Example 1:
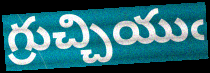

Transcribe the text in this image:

గ్రుచ్చియుఁ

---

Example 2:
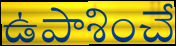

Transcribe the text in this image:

ఉపాశించే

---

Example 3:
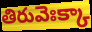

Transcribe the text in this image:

తిరువెఃక్కా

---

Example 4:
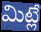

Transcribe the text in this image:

మిట్లే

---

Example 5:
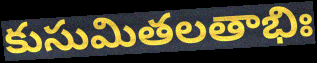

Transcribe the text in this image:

కుసుమితలతాభిః